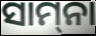
ସାମ୍‍ନା